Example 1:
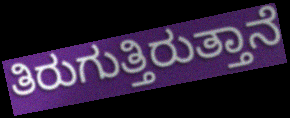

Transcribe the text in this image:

ತಿರುಗುತ್ತಿರುತ್ತಾನೆ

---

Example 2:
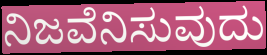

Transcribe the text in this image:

ನಿಜವೆನಿಸುವುದು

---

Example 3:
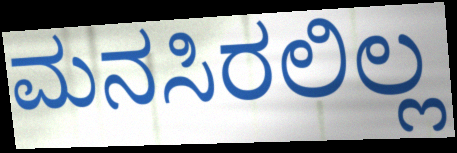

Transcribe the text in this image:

ಮನಸಿರಲಿಲ್ಲ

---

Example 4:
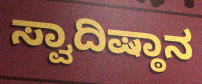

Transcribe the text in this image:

ಸ್ವಾದಿಷ್ಠಾನ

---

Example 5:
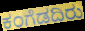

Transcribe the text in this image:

ಕಂಗೆಡದಿರು